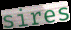
sires